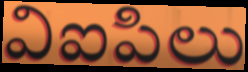
విఐపిలు